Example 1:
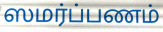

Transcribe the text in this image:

ஸமர்ப்பணம்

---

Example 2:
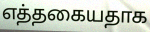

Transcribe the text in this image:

எத்தகையதாக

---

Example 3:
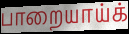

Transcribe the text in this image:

பாறையாய்க்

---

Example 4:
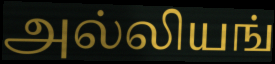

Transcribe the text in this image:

அல்லியங்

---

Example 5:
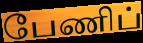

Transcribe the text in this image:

பேணிப்